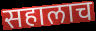
सहालाच